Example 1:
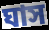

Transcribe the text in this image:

ঘাস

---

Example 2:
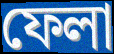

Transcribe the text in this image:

ফেলা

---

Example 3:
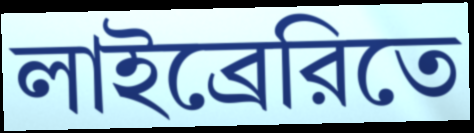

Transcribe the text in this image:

লাইব্রেরিতে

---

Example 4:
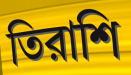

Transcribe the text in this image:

তিরাশি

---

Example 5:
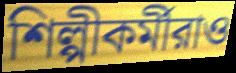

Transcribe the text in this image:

শিল্পীকর্মীরাও